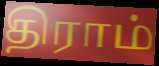
திராம்